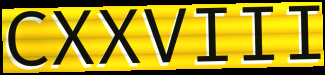
CXXVIII